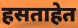
हसताहेत